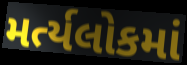
મર્ત્યલોકમાં